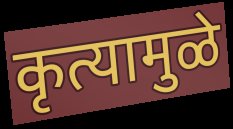
कृत्यामुळे